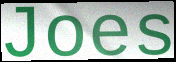
Joes